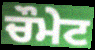
ਚੌਮੇਟ